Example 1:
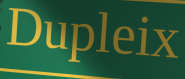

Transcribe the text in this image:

Dupleix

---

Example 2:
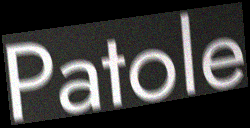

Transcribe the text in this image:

Patole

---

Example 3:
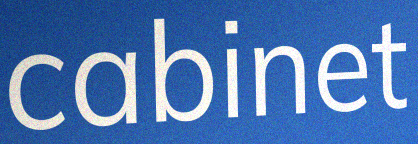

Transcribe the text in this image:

cabinet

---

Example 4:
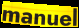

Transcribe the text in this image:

manuel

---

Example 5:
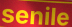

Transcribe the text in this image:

senile